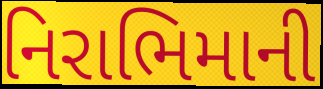
નિરાભિમાની